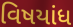
વિષયાંધ